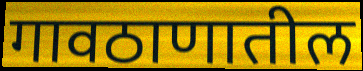
गावठाणातील